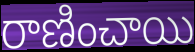
రాణించాయి